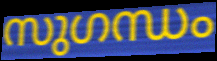
സുഗന്ധം